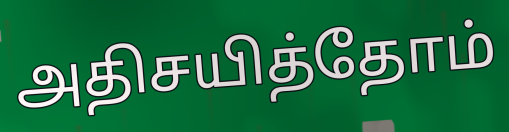
அதிசயித்தோம்